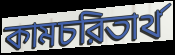
কামচরিতার্থ